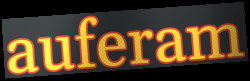
auferam